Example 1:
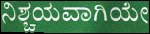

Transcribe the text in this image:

ನಿಶ್ಚಯವಾಗಿಯೇ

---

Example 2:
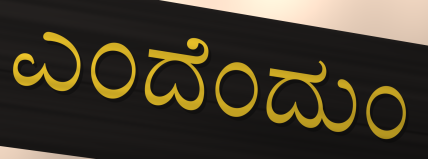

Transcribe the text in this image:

ಎಂದೆಂದುಂ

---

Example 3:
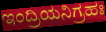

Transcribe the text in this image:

ಇಂದ್ರಿಯನಿಗ್ರಹಃ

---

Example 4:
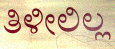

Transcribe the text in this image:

ತಿಳೀಲಿಲ್ಲ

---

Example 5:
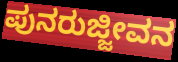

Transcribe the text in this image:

ಪುನರುಜ್ಜೀವನ